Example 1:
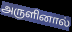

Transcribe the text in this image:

அருளினால்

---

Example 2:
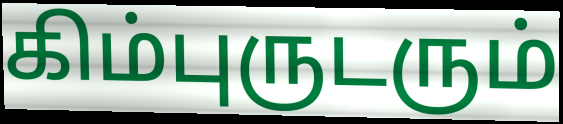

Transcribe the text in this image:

கிம்புருடரும்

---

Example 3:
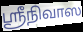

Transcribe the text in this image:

ஸ்ரீநிவாஸ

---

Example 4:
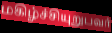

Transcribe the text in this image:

மகிழ்ச்சியுறுபவர்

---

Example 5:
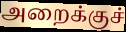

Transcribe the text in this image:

அறைக்குச்